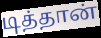
டித்தான்